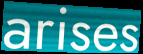
arises